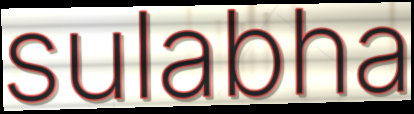
sulabha